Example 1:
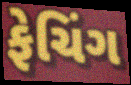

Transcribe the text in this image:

ફેચિંગ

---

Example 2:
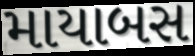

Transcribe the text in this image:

માયાબસ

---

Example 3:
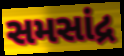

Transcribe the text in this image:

સમસાંદ્ર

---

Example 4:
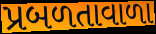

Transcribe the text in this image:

પ્રબળતાવાળા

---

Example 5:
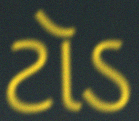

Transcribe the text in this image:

ટૉડ